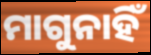
ମାଗୁନାହିଁ